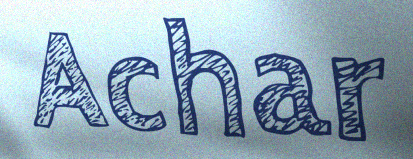
Achar